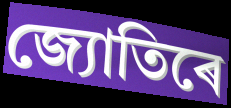
জ্যোতিৰে